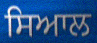
ਸਿਆਲ